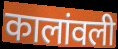
कालांवली